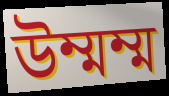
উম্মম্ম